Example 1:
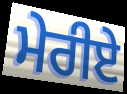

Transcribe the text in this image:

ਮੇਰੀਏ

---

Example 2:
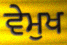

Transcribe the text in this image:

ਵੇਮੁਖ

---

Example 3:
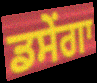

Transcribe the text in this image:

ਡਸੇਂਗਾ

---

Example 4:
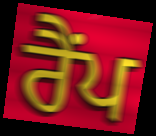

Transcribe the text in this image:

ਰੈਂਪ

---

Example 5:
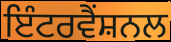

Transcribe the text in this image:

ਇੰਟਰਵੈਂਸ਼ਨਲ